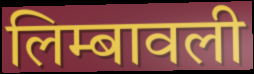
लिम्बावली